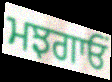
ਮਝਗਾਓਂ